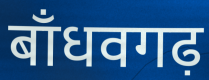
बाँधवगढ़